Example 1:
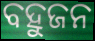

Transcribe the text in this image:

ବହୁଜନ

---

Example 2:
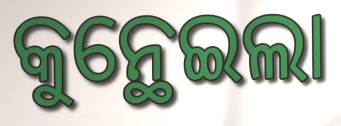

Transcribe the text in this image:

କୁନ୍ଥେଇଲା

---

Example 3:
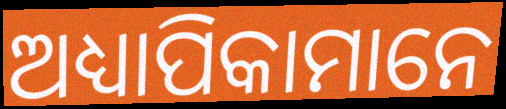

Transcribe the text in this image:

ଅଧ୍ୟାପିକାମାନେ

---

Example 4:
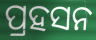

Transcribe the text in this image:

ପ୍ରହସନ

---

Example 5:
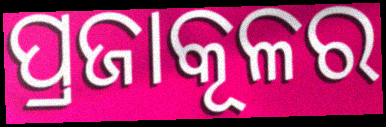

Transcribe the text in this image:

ପ୍ରଜାକୂଳର